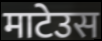
माटेउस